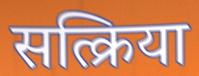
सत्क्रिया